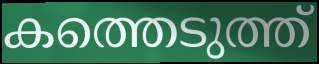
കത്തെടുത്ത്